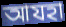
আযহা